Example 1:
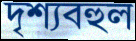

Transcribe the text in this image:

দৃশ্যবহুল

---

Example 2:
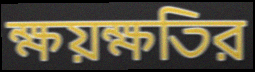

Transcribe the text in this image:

ক্ষয়ক্ষতির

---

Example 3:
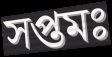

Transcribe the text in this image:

সপ্তমঃ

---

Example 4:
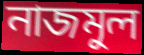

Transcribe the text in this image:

নাজমুল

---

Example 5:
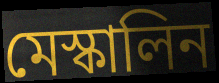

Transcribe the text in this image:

মেস্কালিন